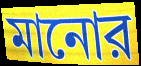
মানোর